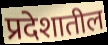
प्रदेशातील